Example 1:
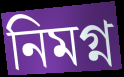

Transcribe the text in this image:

নিমগ্ন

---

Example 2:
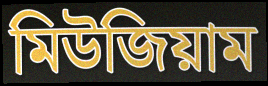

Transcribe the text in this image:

মিউজিয়াম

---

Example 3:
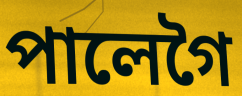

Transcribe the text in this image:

পালেগৈ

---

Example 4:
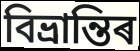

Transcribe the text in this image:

বিভ্ৰান্তিৰ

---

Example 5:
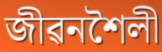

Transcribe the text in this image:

জীৱনশৈলী